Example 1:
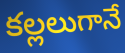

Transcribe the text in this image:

కల్లలుగానే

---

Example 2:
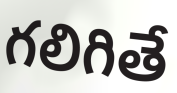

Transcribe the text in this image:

గలిగితే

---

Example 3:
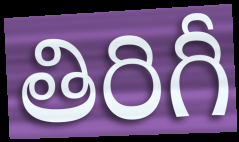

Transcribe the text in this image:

తిరిగీ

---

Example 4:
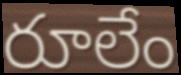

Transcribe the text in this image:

రూలేం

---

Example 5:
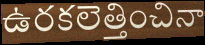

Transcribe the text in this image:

ఉరకలెత్తించినా